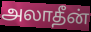
அலாதீன்